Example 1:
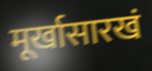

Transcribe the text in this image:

मूर्खासारखं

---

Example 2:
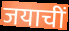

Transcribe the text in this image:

जयाचीं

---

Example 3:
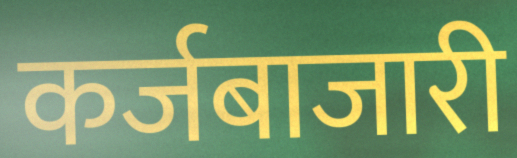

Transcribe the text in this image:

कर्जबाजारी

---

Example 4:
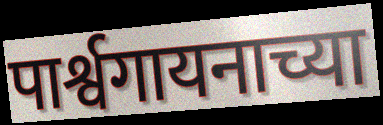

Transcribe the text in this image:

पार्श्वगायनाच्या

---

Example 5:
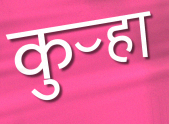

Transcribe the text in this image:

कुऱ्हा